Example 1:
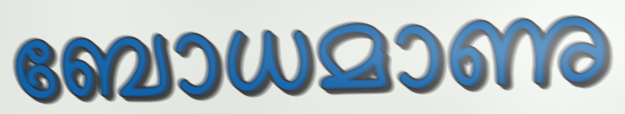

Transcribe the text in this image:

ബോധമാണു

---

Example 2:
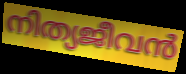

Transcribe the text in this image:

നിത്യജീവൻ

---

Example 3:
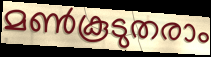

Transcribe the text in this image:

മൺകൂടുതരാം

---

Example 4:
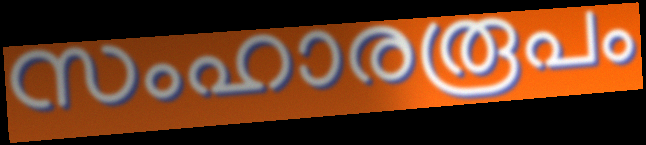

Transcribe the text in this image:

സംഹാരരൂപം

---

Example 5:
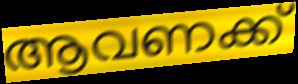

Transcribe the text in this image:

ആവണക്ക്